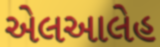
એલઆલેહ